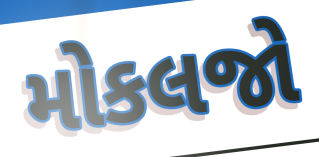
મોકલજો